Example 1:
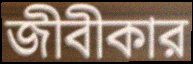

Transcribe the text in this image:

জীবীকার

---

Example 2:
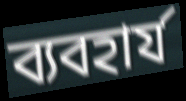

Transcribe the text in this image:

ব্যবহার্য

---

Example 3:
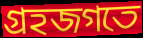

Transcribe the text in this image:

গ্রহজগতে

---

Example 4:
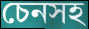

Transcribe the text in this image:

চেনসহ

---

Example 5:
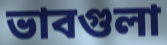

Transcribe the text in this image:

ভাবগুলা